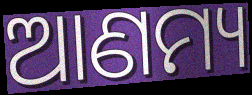
ଆଣମ୍ୟ